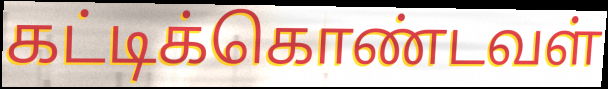
கட்டிக்கொண்டவள்